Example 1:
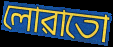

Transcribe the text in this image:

লোৱাতো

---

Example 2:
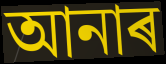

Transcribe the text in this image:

আনাৰ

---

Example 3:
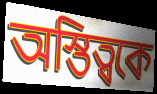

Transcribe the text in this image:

অস্তিত্বকে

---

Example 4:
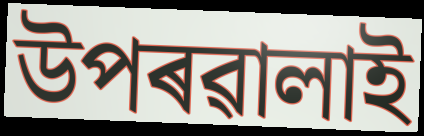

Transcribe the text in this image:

উপৰৱালাই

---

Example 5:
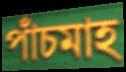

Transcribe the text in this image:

পাঁচমাহ